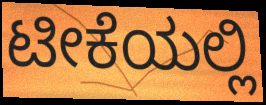
ಟೀಕೆಯಲ್ಲಿ